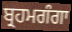
ਬ੍ਰਹਮਗੰਗਾ